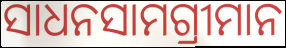
ସାଧନସାମଗ୍ରୀମାନ